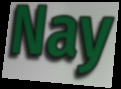
Nay